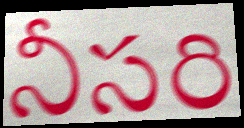
నీసరి